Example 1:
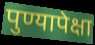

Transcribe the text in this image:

पुण्यापेक्षा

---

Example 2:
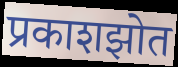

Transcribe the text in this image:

प्रकाशझोत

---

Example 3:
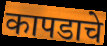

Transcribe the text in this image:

कापडाचे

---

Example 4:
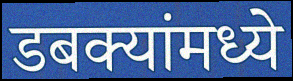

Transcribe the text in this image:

डबक्यांमध्ये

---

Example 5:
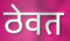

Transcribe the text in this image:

ठेवत